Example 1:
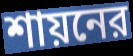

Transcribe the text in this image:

শায়নের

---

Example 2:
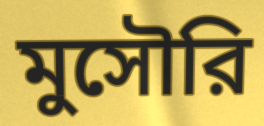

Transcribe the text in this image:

মুসৌরি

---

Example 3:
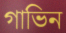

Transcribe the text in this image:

গাভিন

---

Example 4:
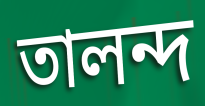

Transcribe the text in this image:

তালন্দ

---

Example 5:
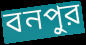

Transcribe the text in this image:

বনপুর